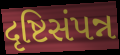
દૃષ્ટિસંપન્ન